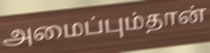
அமைப்பும்தான்